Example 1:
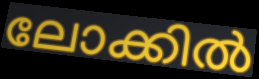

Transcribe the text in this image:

ലോക്കിൽ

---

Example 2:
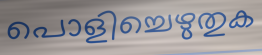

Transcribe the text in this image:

പൊളിച്ചെഴുതുക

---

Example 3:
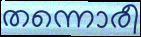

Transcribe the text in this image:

തന്നൊരീ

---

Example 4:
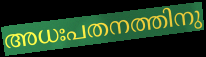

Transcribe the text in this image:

അധഃപതനത്തിനു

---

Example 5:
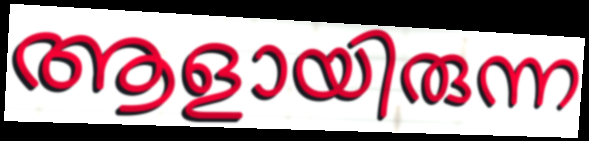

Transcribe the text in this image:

ആളായിരുന്ന